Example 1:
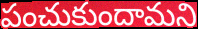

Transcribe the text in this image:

పంచుకుందామని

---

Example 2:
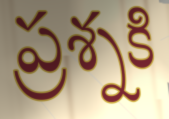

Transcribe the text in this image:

ప్రశ్నకి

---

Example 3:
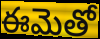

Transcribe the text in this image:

ఈమెతో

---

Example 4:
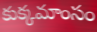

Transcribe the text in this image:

కుక్కమాంసం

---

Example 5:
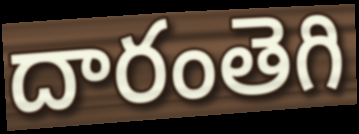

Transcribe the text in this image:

దారంతెగి